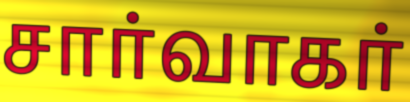
சார்வாகர்